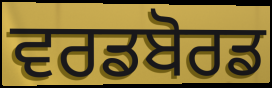
ਵਰਡਬੋਰਡ